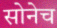
सोनेच